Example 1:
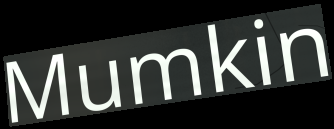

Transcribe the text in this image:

Mumkin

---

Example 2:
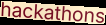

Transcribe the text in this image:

hackathons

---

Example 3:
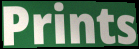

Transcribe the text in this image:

Prints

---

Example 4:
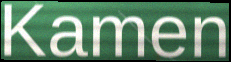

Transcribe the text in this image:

Kamen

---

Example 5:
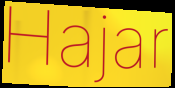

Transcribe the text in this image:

Hajar